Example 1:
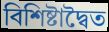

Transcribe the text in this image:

বিশিষ্টাদ্বৈত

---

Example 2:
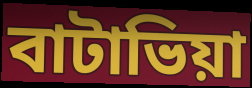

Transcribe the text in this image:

বাটাভিয়া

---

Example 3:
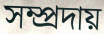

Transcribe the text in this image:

সম্প্রদায়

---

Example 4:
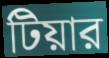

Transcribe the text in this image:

টিয়ার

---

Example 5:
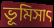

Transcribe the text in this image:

ভূমিসাৎ